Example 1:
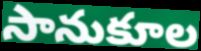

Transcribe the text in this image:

సానుకూల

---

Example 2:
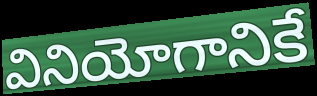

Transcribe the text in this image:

వినియోగానికే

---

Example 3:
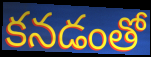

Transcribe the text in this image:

కనడంతో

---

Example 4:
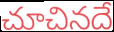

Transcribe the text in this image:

చూచినదే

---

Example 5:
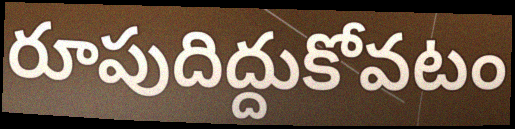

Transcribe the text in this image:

రూపుదిద్దుకోవటం